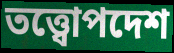
তত্ত্বোপদেশ